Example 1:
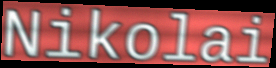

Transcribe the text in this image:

Nikolai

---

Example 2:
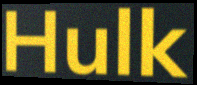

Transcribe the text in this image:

Hulk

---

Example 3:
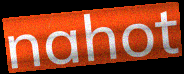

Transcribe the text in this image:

nahot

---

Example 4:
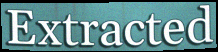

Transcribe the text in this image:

Extracted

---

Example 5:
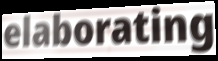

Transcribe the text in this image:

elaborating